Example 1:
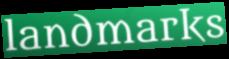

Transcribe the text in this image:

landmarks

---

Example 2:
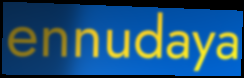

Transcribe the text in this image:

ennudaya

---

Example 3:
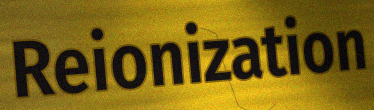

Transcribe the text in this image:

Reionization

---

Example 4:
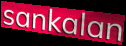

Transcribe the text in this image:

sankalan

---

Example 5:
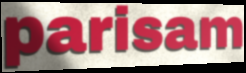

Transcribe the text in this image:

parisam